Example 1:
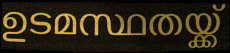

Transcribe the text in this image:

ഉടമസ്ഥതയ്ക്ക്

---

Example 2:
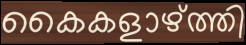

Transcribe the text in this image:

കൈകളാഴ്ത്തി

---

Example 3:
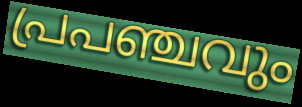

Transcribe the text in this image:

പ്രപഞ്ചവും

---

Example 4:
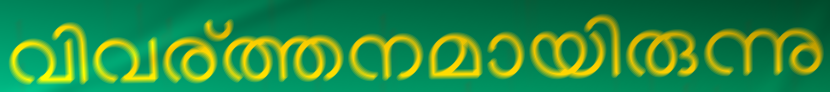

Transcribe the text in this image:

വിവര്ത്തനമായിരുന്നു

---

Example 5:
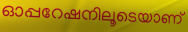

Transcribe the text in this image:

ഓപ്പറേഷനിലൂടെയാണ്